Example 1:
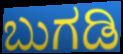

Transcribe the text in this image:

ಬುಗಡಿ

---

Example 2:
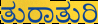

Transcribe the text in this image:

ತುರಾತುರಿ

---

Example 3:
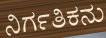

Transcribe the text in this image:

ನಿರ್ಗತಿಕನು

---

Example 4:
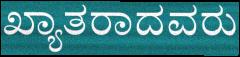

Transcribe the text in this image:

ಖ್ಯಾತರಾದವರು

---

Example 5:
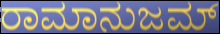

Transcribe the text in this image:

ರಾಮಾನುಜಮ್